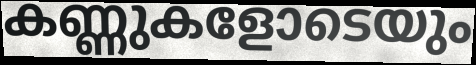
കണ്ണുകളോടെയും